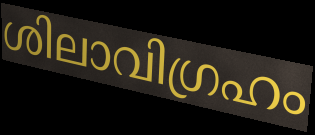
ശിലാവിഗ്രഹം